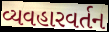
વ્યવહારવર્તન